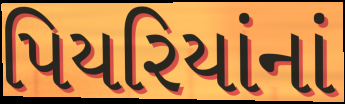
પિયરિયાંનાં